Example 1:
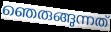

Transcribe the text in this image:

ഞെരുങ്ങുന്നത്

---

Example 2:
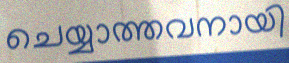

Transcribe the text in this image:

ചെയ്യാത്തവനായി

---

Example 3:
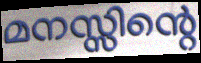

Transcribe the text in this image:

മനസ്സിന്റെ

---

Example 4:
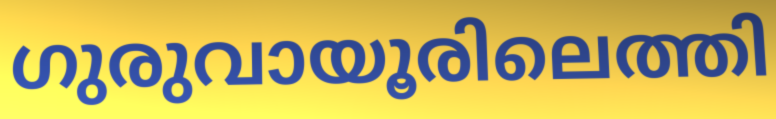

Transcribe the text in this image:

ഗുരുവായൂരിലെത്തി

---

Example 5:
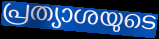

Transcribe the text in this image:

പ്രത്യാശയുടെ